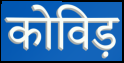
कोविड़